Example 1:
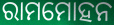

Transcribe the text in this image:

ରାମମୋହନ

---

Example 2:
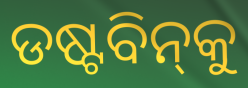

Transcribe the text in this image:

ଡଷ୍ଟବିନ୍‌କୁ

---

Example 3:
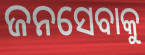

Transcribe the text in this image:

ଜନସେବାକୁ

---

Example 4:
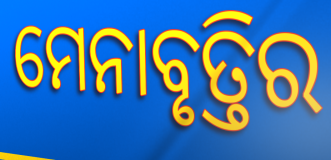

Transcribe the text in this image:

ମେନାବୃତ୍ତିର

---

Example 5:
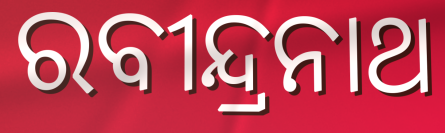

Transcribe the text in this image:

ରବୀନ୍ଦ୍ରନାଥ